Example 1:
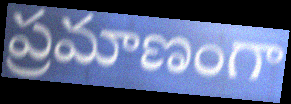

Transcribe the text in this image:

ప్రమాణంగా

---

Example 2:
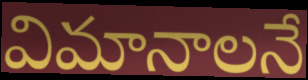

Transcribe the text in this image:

విమానాలనే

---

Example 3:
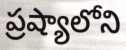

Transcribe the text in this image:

ప్రష్యాలోని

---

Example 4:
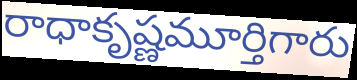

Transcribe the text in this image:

రాధాకృష్ణమూర్తిగారు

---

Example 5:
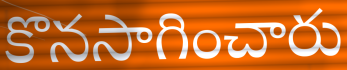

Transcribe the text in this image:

కొనసాగించారు